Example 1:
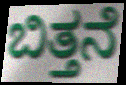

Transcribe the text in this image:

ಬಿತ್ತನೆ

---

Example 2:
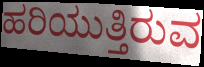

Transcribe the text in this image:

ಹರಿಯುತ್ತಿರುವ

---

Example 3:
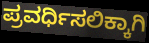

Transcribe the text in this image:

ಪ್ರವರ್ಧಿಸಲಿಕ್ಕಾಗಿ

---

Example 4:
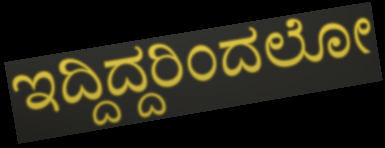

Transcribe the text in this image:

ಇದ್ದಿದ್ದರಿಂದಲೋ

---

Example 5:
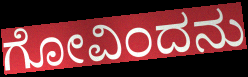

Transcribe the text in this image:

ಗೋವಿಂದನು